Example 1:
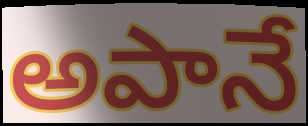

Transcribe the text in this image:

అపానే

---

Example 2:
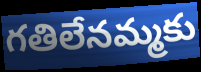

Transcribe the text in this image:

గతిలేనమ్మకు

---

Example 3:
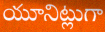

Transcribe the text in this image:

యూనిట్లుగా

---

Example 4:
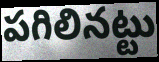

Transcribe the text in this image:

పగిలినట్టు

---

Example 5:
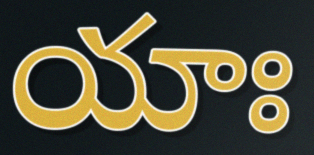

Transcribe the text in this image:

యాః